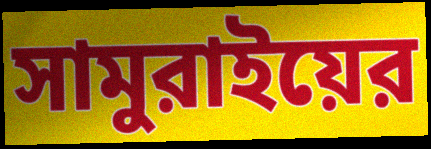
সামুরাইয়ের